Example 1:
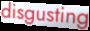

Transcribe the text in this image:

disgusting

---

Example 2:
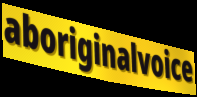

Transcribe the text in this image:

aboriginalvoice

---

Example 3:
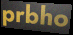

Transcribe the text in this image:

prbho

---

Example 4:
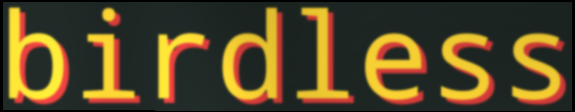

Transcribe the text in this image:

birdless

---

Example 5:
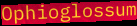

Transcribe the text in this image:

Ophioglossum